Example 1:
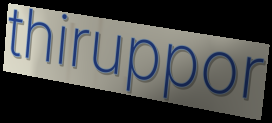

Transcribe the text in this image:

thiruppor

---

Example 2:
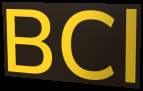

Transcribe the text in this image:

BCl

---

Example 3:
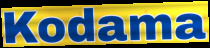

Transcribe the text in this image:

Kodama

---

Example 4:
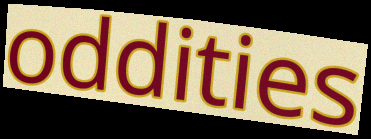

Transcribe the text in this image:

oddities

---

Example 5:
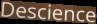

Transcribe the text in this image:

Descience